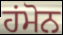
ਹਂਮੋਨ